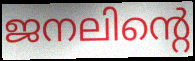
ജനലിന്റെ